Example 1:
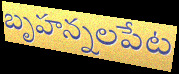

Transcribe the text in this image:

బృహన్నలపేట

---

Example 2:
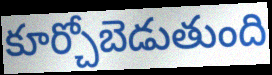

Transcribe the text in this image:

కూర్చోబెడుతుంది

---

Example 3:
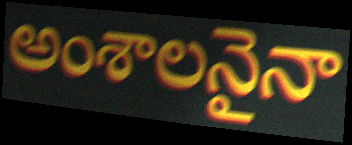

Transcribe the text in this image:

అంశాలనైనా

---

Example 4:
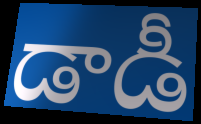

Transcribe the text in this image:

డాడీ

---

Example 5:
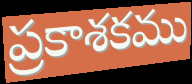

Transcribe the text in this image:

ప్రకాశకము